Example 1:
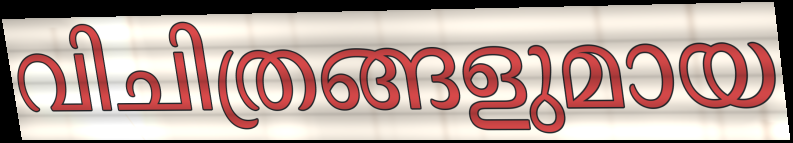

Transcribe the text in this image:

വിചിത്രങ്ങളുമായ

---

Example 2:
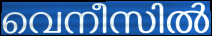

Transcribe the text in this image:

വെനീസിൽ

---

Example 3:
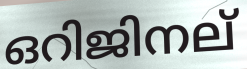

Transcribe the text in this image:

ഒറിജിനല്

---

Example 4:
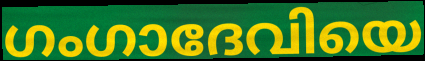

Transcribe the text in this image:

ഗംഗാദേവിയെ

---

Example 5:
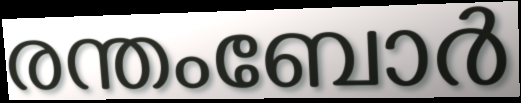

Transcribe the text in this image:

രന്തംബോർ